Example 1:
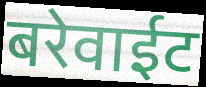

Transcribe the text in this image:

बरेवाईट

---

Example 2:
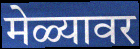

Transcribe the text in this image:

मेळ्यावर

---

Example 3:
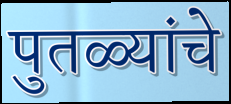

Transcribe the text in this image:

पुतळ्यांचे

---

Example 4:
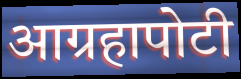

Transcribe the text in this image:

आग्रहापोटी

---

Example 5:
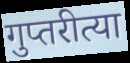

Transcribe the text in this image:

गुप्तरीत्या